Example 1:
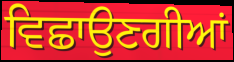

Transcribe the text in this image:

ਵਿਛਾਉਣਗੀਆਂ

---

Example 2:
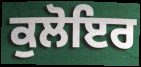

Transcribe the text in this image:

ਕੁਲੋਇਰ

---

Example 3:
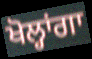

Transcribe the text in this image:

ਖੋਲ੍ਹਾਂਗਾ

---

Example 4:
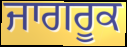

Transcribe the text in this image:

ਜਾਗਰੂਕ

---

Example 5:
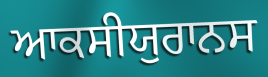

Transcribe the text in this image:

ਆਕਸੀਯੁਰਾਨਸ